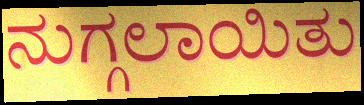
ನುಗ್ಗಲಾಯಿತು